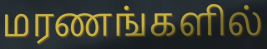
மரணங்களில்